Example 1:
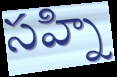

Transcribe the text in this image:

సహ్ని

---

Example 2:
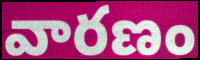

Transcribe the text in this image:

వారణం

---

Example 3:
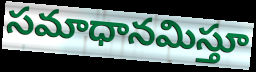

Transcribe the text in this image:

సమాధానమిస్తూ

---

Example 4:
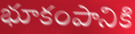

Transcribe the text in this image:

భూకంపానికి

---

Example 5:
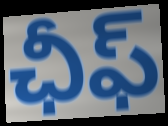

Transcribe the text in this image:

ఛీఫ్